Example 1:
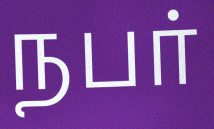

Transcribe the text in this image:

நபர்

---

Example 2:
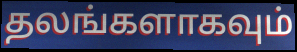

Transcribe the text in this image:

தலங்களாகவும்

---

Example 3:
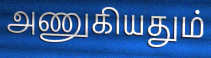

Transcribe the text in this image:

அணுகியதும்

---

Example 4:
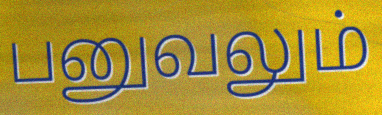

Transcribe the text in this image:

பனுவலும்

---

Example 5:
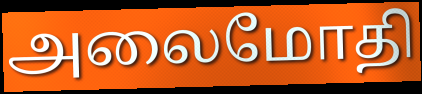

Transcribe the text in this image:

அலைமோதி